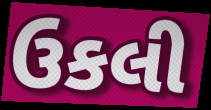
ઉકલી